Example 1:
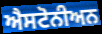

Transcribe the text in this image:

ਐਸਟੋਨੀਅਨ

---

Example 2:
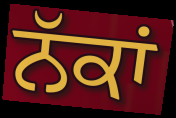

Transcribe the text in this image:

ਨੱਕਾਂ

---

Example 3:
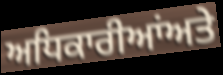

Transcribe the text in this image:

ਅਧਿਕਾਰੀਆਂਅਤੇ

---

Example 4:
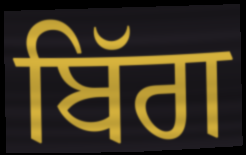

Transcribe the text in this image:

ਬਿੱਗ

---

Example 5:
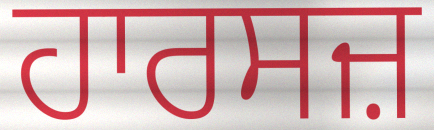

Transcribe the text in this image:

ਹਾਰਸਜ਼